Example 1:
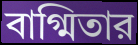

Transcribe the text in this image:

বাগ্মিতার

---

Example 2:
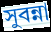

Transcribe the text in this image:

সুবন্না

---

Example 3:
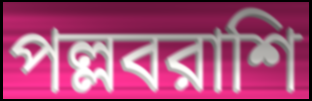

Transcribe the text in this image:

পল্লবরাশি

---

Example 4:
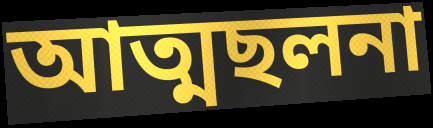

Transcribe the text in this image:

আত্মছলনা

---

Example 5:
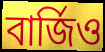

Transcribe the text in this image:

বার্জিও